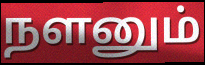
நளனும்